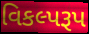
વિકલ્પરૂપ